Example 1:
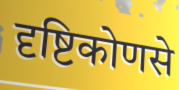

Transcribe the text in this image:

दृष्टिकोणसे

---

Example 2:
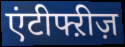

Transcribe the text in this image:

एंटीफ्ऱीज़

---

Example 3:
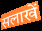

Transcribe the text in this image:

सलाखें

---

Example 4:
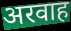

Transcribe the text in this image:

अरवाह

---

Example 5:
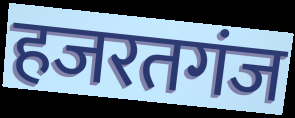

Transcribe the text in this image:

हजरतगंज